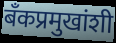
बँकप्रमुखांशी